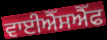
ਵਾਈਐੱਸਐੱਫ